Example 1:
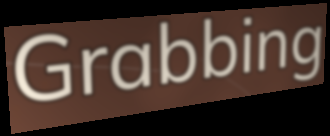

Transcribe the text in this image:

Grabbing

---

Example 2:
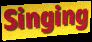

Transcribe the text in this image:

Singing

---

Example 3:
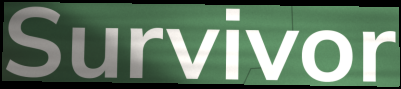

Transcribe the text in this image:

Survivor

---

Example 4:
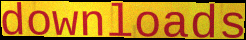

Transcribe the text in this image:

downloads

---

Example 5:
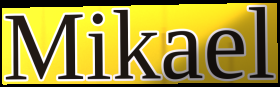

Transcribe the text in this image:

Mikael